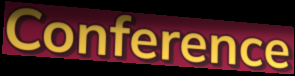
Conference